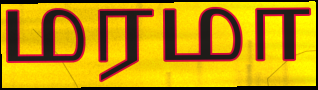
மரமா